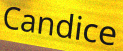
Candice